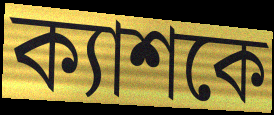
ক্যাশকে